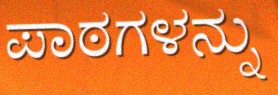
ಪಾಠಗಳನ್ನು